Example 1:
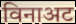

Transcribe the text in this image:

विनाअट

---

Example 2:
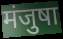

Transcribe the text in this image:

मंजुषा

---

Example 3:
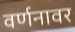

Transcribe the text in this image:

वर्णनावर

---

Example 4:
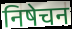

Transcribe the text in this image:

निषेचन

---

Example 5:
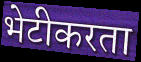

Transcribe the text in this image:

भेटीकरता